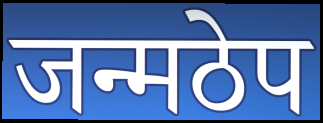
जन्मठेप